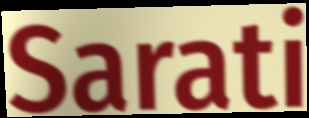
Sarati